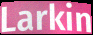
Larkin